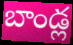
బాండ్ల